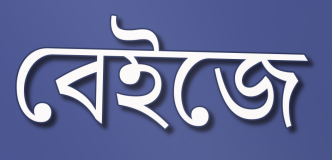
বেইজে